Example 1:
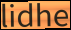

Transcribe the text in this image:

lidhe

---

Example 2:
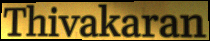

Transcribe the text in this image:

Thivakaran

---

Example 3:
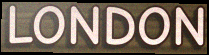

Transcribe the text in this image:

LONDON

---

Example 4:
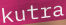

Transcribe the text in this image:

kutra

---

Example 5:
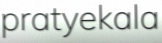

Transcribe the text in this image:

pratyekala